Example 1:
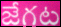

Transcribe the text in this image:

జేగట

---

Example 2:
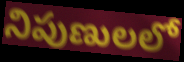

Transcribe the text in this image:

నిపుణులలో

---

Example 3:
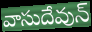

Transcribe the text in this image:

వాసుదేవున్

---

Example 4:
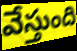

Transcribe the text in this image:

వేస్తుంది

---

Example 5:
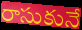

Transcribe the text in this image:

రాసుకునే